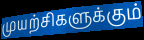
முயற்சிகளுக்கும்